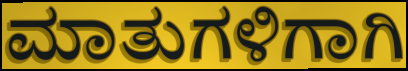
ಮಾತುಗಳಿಗಾಗಿ